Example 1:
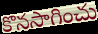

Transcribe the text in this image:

కొనసాగించు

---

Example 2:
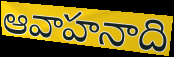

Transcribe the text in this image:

ఆవాహనాది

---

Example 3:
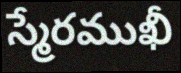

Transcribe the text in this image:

స్మేరముఖీ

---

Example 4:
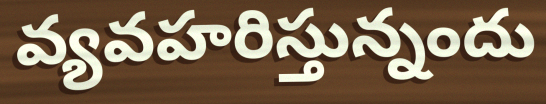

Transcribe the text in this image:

వ్యవహరిస్తున్నందు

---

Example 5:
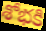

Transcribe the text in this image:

శోభకి